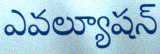
ఎవల్యూషన్